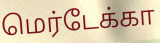
மெர்டேக்கா